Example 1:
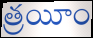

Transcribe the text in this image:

త్రయీం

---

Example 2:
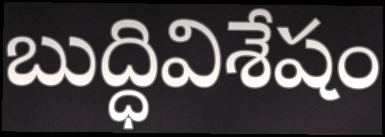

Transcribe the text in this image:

బుద్ధివిశేషం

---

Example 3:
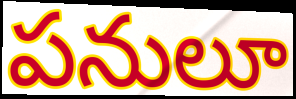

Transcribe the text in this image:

పనులూ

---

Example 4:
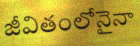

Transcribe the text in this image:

జీవితంలోనైనా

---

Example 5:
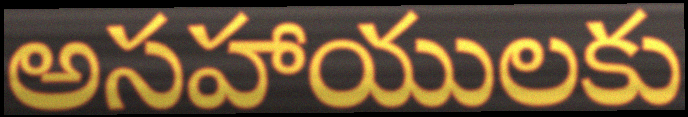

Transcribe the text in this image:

అసహాయులకు